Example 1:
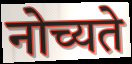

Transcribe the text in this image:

नोच्यते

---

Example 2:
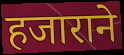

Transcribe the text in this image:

हजाराने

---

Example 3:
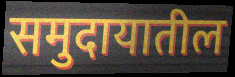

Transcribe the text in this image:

समुदायातील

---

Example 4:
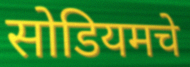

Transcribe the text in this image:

सोडियमचे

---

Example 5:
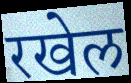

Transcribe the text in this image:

रखेल